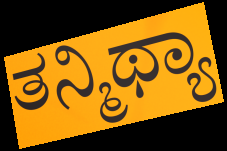
ತನ್ಮಿಥ್ಯಾ